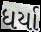
ધર્યા